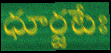
ధూర్జటేః